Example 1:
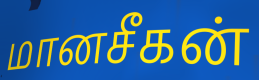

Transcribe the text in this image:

மானசீகன்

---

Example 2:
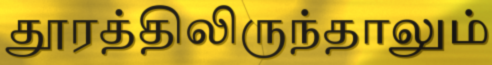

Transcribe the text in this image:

தூரத்திலிருந்தாலும்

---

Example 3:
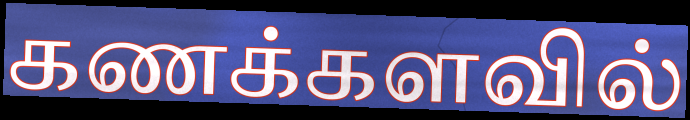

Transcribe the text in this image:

கணக்களவில்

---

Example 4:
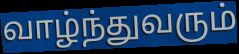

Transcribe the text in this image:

வாழ்ந்துவரும்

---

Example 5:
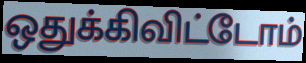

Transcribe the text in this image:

ஒதுக்கிவிட்டோம்